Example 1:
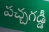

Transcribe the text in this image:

పచ్చగడ్డీ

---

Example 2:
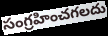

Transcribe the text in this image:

సంగ్రహించగలదు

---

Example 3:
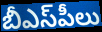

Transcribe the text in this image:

బీఎస్‌పీలు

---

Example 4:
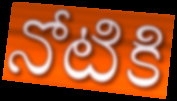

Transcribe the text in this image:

నోటికి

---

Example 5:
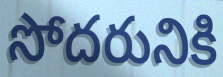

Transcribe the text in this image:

సోదరునికి